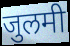
जुलमी